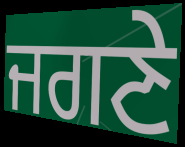
ਜਗਣੇ